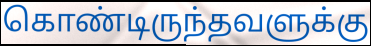
கொண்டிருந்தவளுக்கு